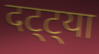
दट्ट्या